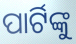
ପାର୍ଟିଙ୍କୁ